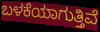
ಬಳಕೆಯಾಗುತ್ತಿವೆ